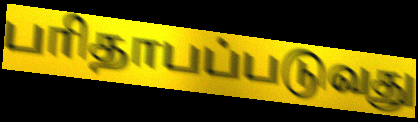
பரிதாபப்படுவது